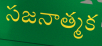
సజనాత్మక